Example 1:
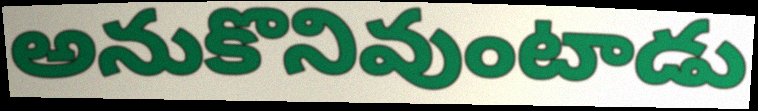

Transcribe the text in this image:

అనుకొనివుంటాడు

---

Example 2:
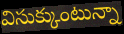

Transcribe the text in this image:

విసుక్కుంటున్నా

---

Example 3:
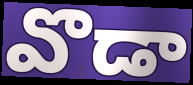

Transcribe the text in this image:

వొడా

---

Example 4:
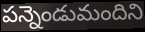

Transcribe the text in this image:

పన్నెండుమందిని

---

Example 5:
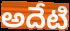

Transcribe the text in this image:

అదేటి